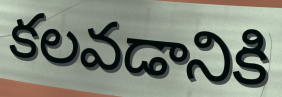
కలవడానికి